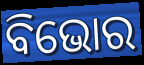
ବିଭୋର